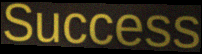
Success